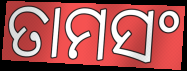
ତାମସଂ